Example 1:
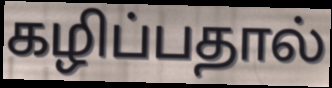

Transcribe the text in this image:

கழிப்பதால்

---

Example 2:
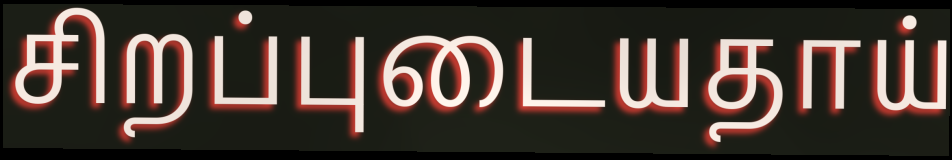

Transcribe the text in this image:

சிறப்புடையதாய்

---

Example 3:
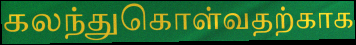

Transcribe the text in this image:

கலந்துகொள்வதற்காக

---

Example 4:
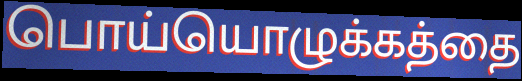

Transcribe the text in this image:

பொய்யொழுக்கத்தை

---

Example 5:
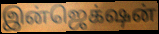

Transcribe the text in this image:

இன்ஜெக்‌ஷன்